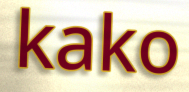
kako